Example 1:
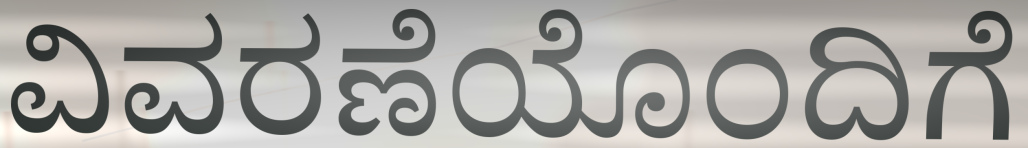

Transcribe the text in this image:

ವಿವರಣೆಯೊಂದಿಗೆ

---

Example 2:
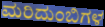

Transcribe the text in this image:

ಮರಿದುಂಬಿಗಳ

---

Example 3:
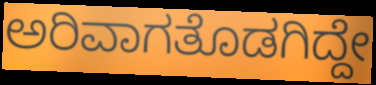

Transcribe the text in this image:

ಅರಿವಾಗತೊಡಗಿದ್ದೇ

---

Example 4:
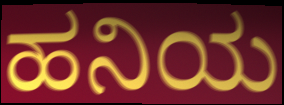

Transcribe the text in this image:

ಹನಿಯ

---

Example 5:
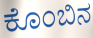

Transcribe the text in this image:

ಕೊಂಬಿನ